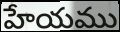
హేయము